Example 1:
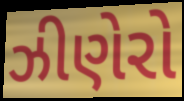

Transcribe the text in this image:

ઝીણેરો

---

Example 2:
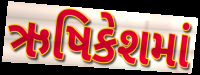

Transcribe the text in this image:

ઋષિકેશમાં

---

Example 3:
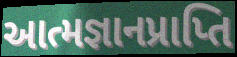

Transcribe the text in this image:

આત્મજ્ઞાનપ્રાપ્તિ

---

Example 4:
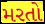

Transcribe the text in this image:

મરતો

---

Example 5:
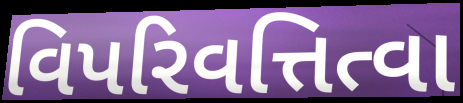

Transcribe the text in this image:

વિપરિવત્તિત્વા